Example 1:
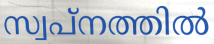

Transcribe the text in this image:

സ്വപ്നത്തിൽ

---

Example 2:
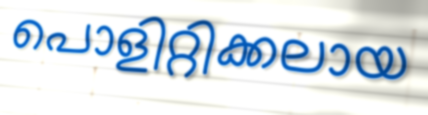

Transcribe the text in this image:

പൊളിറ്റിക്കലായ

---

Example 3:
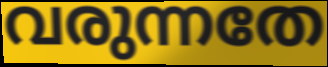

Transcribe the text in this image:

വരുന്നതേ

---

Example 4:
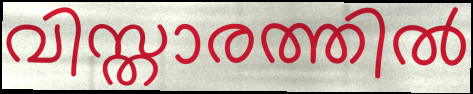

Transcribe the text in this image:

വിസ്താരത്തിൽ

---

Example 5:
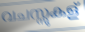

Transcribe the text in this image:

വചസ്സുകള്